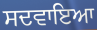
ਸਦਵਾਇਆ